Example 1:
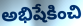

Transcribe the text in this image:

అభిషేకించి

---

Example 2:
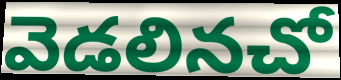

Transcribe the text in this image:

వెడలినచో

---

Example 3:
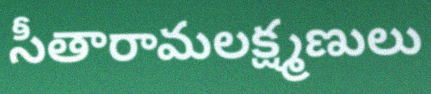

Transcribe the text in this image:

సీతారామలక్ష్మణులు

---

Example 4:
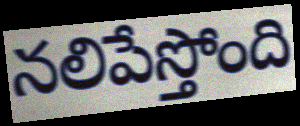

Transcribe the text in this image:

నలిపేస్తోంది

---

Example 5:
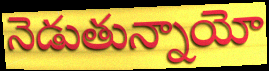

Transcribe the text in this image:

నెడుతున్నాయో